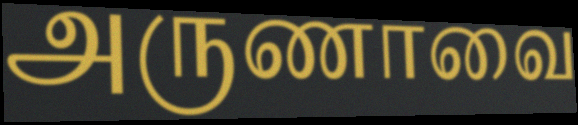
அருணாவை